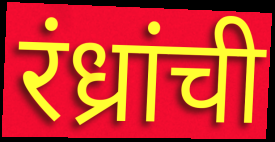
रंध्रांची